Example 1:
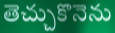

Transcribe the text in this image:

తెచ్చుకొనెను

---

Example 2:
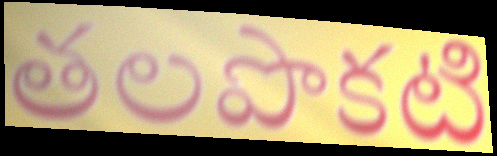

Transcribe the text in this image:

తలపొకటి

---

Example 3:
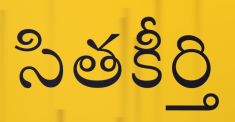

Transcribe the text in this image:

సితకీర్తి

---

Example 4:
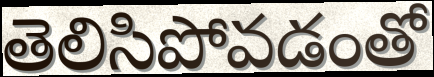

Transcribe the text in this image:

తెలిసిపోవడంతో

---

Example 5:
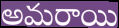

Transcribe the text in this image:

అమరాయి